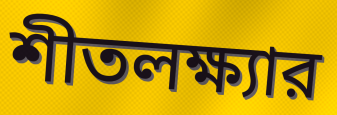
শীতলক্ষ্যার